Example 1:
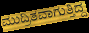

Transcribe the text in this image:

ಮುದ್ರಿತವಾಗುತ್ತಿದ್ದ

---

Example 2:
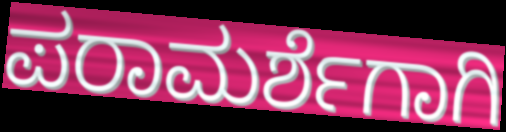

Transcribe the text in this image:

ಪರಾಮರ್ಶೆಗಾಗಿ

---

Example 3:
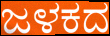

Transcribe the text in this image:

ಜಳಕದ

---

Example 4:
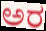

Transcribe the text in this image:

ಅರ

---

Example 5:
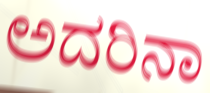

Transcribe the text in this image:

ಅದರಿನಾ